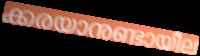
ക്കരയാനുണ്ടായീല